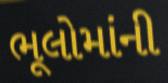
ભૂલોમાંની